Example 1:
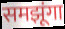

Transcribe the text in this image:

समझूंगा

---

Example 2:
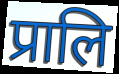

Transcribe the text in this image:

प्रालि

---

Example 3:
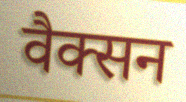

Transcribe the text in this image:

वैक्सन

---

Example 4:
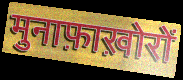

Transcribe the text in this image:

मुनाफ़ाख़ोरों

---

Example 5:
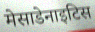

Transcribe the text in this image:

मेसाडेनाइटिस